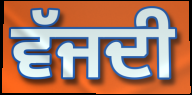
ਵੱਜਦੀ